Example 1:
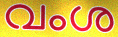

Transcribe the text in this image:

വംശ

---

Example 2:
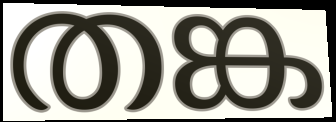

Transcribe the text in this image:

തങ്ക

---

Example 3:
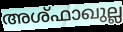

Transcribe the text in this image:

അശ്ഫാഖുല്ല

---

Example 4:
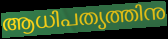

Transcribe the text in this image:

ആധിപത്യത്തിനു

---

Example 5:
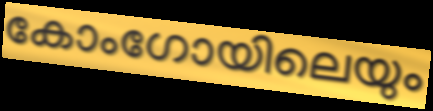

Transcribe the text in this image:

കോംഗോയിലെയും